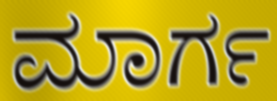
ಮಾರ್ಗ